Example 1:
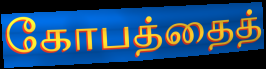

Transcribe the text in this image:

கோபத்தைத்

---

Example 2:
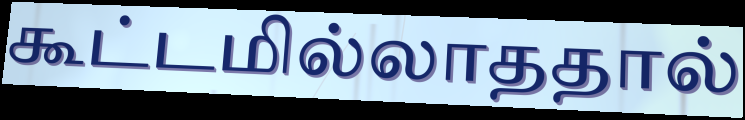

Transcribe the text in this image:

கூட்டமில்லாததால்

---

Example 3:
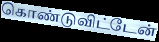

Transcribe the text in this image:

கொண்டுவிட்டேன்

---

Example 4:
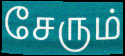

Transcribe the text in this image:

சேரும்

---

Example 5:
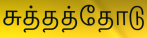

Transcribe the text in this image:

சுத்தத்தோடு